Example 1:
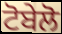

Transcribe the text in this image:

ਟੋਬੇਲੋ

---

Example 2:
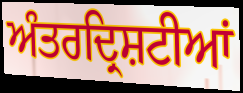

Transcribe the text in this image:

ਅੰਤਰਦ੍ਰਿਸ਼ਟੀਆਂ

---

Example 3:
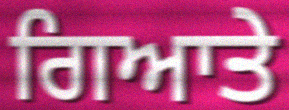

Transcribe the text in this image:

ਗਿਆਤੇ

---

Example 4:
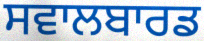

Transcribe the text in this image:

ਸਵਾਲਬਾਰਡ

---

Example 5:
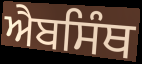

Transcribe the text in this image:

ਐਬਸਿੰਥ